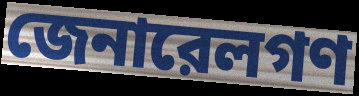
জেনারেলগণ